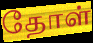
தோள்